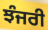
ਝੰਜਰੀ